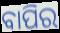
ବାପିର